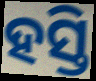
ହସ୍ତି